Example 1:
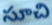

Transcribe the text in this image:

సూచి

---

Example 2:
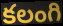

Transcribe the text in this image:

కలంగి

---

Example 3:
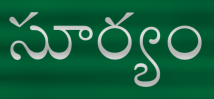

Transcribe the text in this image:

సూర్యం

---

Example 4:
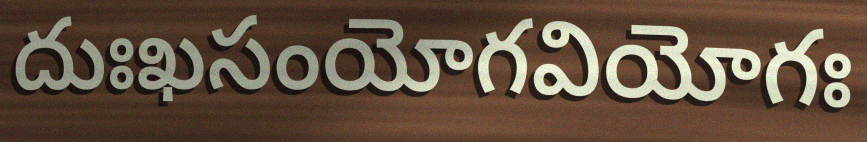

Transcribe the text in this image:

దుఃఖసంయోగవియోగః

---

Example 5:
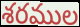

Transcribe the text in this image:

శరముల